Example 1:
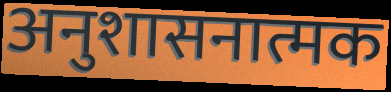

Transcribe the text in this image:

अनुशासनात्मक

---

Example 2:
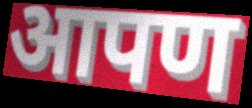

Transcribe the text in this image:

आपण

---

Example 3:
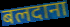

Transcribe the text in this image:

बलदाना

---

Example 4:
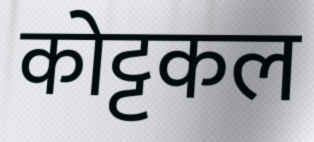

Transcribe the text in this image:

कोट्टकल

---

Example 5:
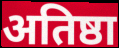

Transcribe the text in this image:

अतिष्ठा